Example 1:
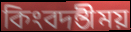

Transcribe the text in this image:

কিংবদন্তীময়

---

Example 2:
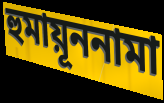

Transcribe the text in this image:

হুমায়ূননামা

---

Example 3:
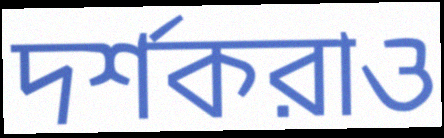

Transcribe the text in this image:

দর্শকরাও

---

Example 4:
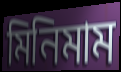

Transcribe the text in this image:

মিনিমাম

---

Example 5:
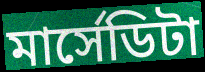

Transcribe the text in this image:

মার্সেডিটা